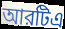
আরটিএ